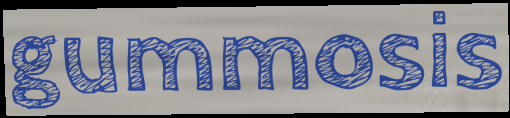
gummosis